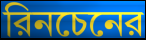
রিনচেনের